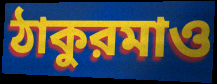
ঠাকুরমাও